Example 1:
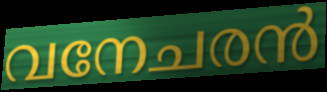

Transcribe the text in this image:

വനേചരൻ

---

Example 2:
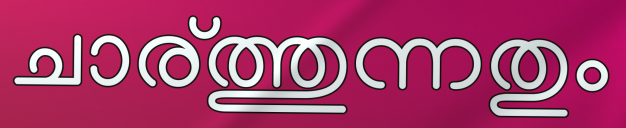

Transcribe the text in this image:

ചാര്ത്തുന്നതും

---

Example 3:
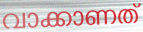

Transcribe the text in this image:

വാക്കാണത്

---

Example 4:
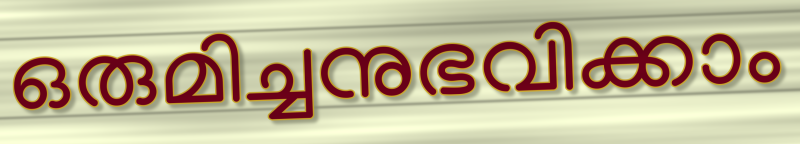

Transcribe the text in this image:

ഒരുമിച്ചനുഭവിക്കാം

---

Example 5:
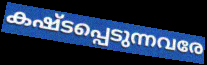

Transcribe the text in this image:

കഷ്ടപ്പെടുന്നവരേ